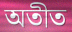
অতীত